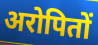
अरोपितों